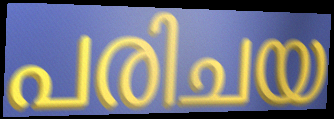
പരിചയ